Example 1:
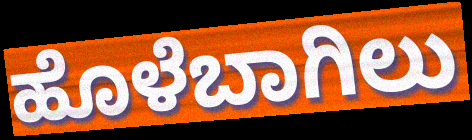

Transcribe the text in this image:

ಹೊಳೆಬಾಗಿಲು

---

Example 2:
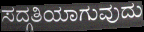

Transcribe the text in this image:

ಸದ್ಗತಿಯಾಗುವುದು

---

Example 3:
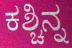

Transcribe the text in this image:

ಕಶ್ಚಿನ್ನ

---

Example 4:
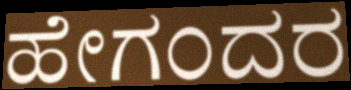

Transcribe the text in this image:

ಹೇಗಂದರ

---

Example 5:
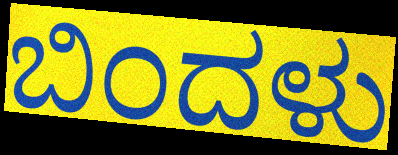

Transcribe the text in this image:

ಬಿಂದಳು